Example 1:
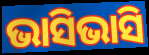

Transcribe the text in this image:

ଭାସିଭାସି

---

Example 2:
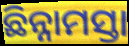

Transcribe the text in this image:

ଛିନ୍ନାମସ୍ତା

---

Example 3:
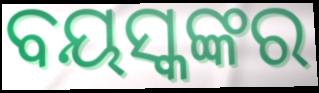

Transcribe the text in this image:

ବୟସ୍କଙ୍କର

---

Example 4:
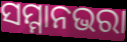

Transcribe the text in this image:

ସମ୍ମାନଭରା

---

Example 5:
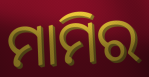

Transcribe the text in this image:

ମାମିର